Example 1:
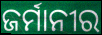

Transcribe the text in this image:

ଜର୍ମାନୀର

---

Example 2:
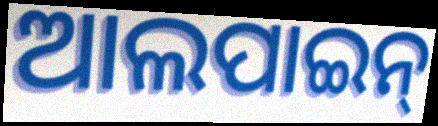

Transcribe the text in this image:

ଆଲପାଇନ୍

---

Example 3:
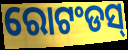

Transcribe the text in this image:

ରୋଟଂଡସ୍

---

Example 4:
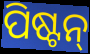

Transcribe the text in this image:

ପିଷ୍ଟନ୍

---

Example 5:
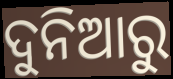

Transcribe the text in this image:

ଦୁନିଆରୁ